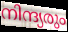
നിന്ദ്യരും